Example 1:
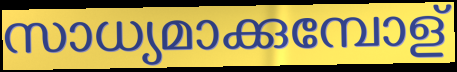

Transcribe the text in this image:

സാധ്യമാക്കുമ്പോള്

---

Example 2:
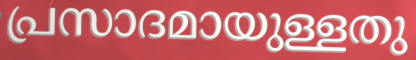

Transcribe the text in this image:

പ്രസാദമായുള്ളതു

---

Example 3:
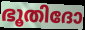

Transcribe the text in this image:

ഭൂതിദോ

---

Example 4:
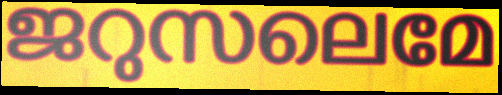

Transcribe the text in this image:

ജറുസലെമേ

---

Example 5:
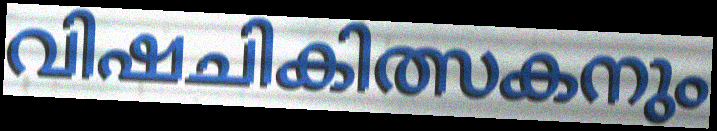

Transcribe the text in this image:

വിഷചികിത്സകനും